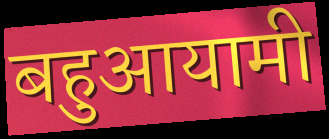
बहुआयामी